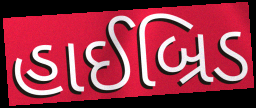
હાઈબ્રિડ